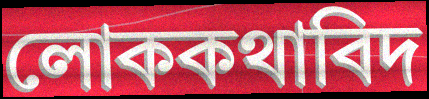
লোককথাবিদ